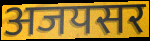
अजयसर